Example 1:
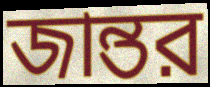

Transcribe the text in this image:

জান্তর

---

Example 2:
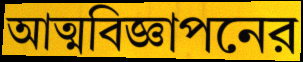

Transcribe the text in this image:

আত্মবিজ্ঞাপনের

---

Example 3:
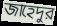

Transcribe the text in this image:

জাহেদুর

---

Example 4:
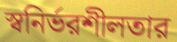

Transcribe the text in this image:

স্বনির্ভরশীলতার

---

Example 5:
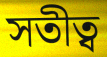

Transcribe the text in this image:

সতীত্ব